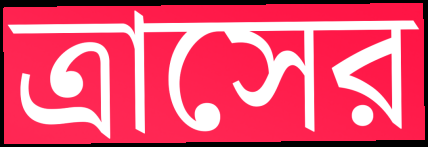
ত্রাসের